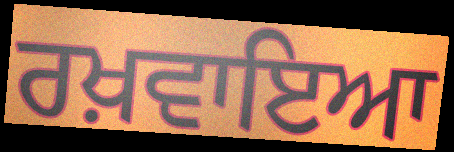
ਰਖ਼ਵਾਇਆ